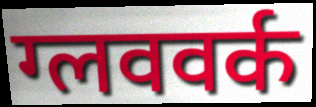
ग्लववर्क